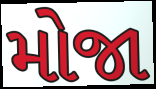
મોજા